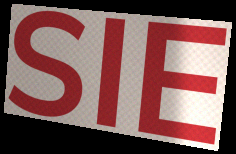
SIE